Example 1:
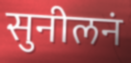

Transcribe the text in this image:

सुनीलनं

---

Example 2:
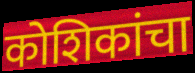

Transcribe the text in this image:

कोशिकांचा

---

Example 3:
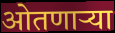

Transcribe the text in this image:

ओतणाऱ्या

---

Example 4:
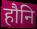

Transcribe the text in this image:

हौनि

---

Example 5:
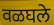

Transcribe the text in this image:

वळघले